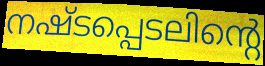
നഷ്ടപ്പെടലിന്റെ